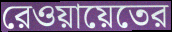
রেওয়ায়েতের